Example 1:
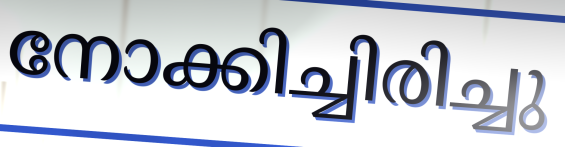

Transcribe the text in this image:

നോക്കിച്ചിരിച്ചു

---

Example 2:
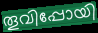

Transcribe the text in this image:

തൂവിപ്പോയി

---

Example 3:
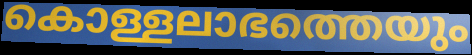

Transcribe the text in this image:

കൊള്ളലാഭത്തെയും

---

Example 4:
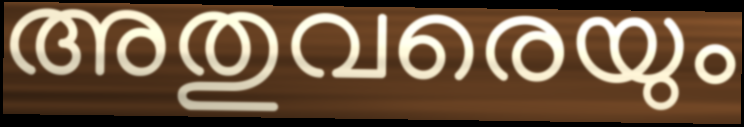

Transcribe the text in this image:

അതുവരെയും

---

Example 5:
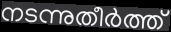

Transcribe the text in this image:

നടന്നുതീർത്ത്